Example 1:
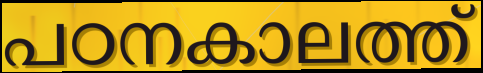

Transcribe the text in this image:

പഠനകാലത്ത്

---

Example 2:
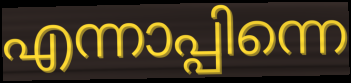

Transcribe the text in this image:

എന്നാപ്പിന്നെ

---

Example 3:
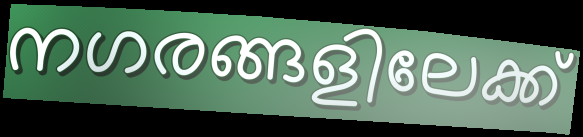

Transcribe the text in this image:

നഗരങ്ങളിലേക്ക്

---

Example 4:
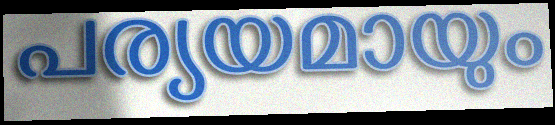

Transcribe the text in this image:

പര്യയമായും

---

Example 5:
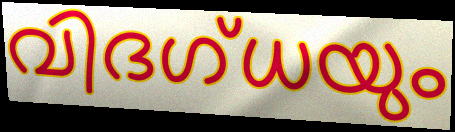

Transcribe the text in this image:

വിദഗ്ധയും